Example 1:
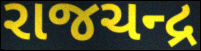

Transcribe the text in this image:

રાજચન્દ્ર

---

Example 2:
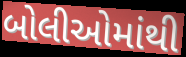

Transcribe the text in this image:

બોલીઓમાંથી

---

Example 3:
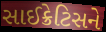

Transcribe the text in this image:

સાઈક્રેટિસને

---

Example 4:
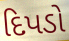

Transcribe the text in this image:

દિપડો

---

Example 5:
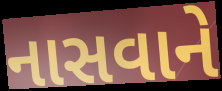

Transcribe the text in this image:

નાસવાને